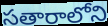
సతారాలోని